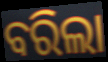
ବରିଲା